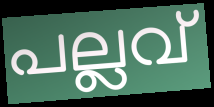
പല്ലവ്